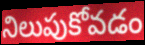
నిలుపుకోవడం